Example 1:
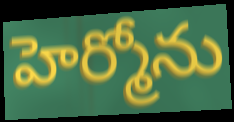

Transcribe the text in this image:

హెర్మోను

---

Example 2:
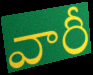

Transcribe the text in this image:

వారీ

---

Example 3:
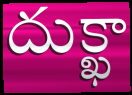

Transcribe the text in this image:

దుక్ఖా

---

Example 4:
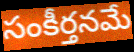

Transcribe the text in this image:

సంకీర్తనమే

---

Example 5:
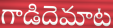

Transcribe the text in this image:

గాడిదెమాట